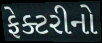
ફેક્ટરીનો